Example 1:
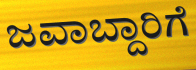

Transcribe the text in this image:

ಜವಾಬ್ದಾರಿಗೆ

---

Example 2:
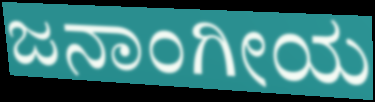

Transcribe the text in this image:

ಜನಾಂಗೀಯ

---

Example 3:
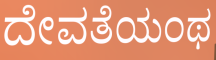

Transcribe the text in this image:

ದೇವತೆಯಂಥ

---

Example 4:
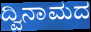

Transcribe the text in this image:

ದ್ವಿನಾಮದ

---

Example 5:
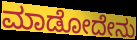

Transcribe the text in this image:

ಮಾಡೋದೇನು